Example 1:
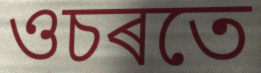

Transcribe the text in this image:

ওচৰতে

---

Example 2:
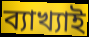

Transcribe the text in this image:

ব্যাখ্যাই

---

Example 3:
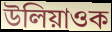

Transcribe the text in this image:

উলিয়াওক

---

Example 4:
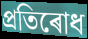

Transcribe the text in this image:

প্ৰতিৰোধ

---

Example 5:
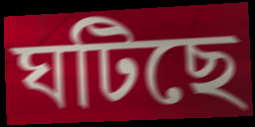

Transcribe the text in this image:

ঘটিছে